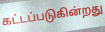
கட்டப்படுகின்றது